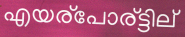
എയര്പോര്ട്ടില്